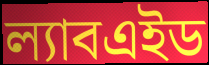
ল্যাবএইড